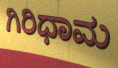
ಗಿರಿಧಾಮ